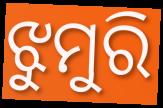
ଝୁମୁରି